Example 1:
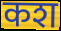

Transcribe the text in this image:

कश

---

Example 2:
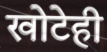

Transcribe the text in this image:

खोटेही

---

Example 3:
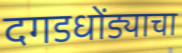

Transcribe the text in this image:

दगडधोंड्याचा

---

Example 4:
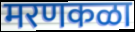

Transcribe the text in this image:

मरणकळा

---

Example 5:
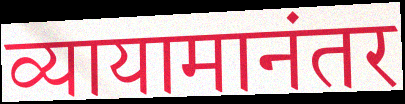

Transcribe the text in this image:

व्यायामानंतर